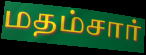
மதம்சார்